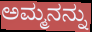
ಅಮ್ಮನನ್ನು